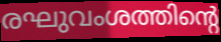
രഘുവംശത്തിന്റെ